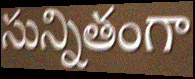
సున్నితంగా